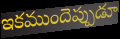
ఇకముందెప్పుడూ